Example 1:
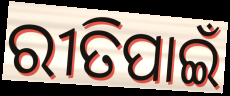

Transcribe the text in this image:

ରୀତିପାଇଁ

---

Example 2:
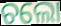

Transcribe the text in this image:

ଚଲୋ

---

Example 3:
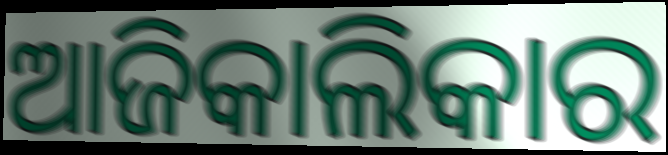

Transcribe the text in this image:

ଆଜିକାଲିକାର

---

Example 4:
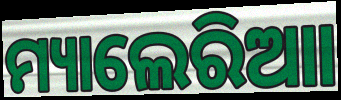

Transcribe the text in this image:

ମ୍ୟାଲେରିଆା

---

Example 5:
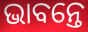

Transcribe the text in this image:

ଭାବନ୍ତେ